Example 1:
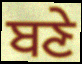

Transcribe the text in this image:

ਬਣੇ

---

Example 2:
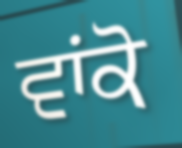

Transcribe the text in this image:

ਵਾਂਕੋ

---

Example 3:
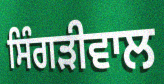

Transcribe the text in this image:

ਸਿੰਗੜੀਵਾਲ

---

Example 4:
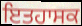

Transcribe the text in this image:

ਇਤਹਾਸਕ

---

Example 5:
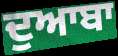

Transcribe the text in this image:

ਦੁਆਬਾ